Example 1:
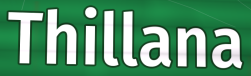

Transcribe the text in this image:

Thillana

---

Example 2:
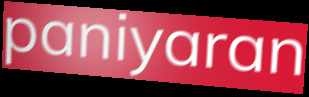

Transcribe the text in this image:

paniyaran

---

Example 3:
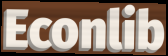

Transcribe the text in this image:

Econlib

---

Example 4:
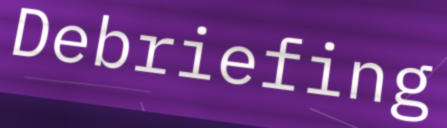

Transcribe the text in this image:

Debriefing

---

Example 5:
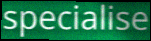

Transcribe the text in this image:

specialise